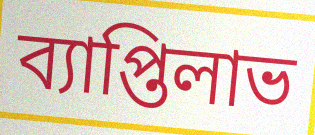
ব্যাপ্তিলাভ